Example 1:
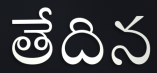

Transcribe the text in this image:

తేదిన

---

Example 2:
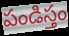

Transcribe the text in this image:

పండిస్తం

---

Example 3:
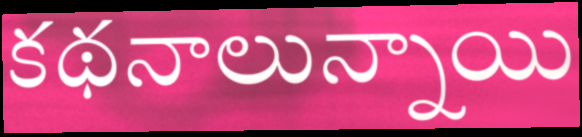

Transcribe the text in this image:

కథనాలున్నాయి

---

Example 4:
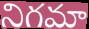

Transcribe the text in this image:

నిగమా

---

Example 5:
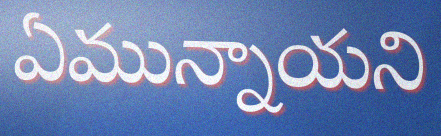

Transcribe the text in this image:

ఏమున్నాయని